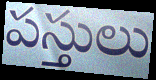
పస్తులు